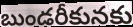
బుండరీకునకు